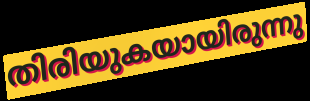
തിരിയുകയായിരുന്നു